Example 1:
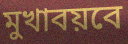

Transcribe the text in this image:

মুখাবয়বে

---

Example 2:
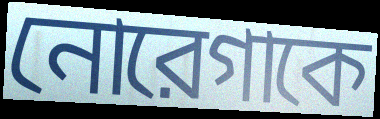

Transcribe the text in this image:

নোরেগাকে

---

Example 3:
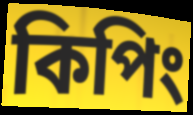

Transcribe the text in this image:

কিপিং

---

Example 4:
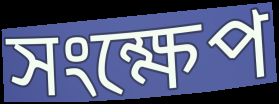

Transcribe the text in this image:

সংক্ষেপ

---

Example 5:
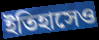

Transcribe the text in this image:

ইতিহাসেও